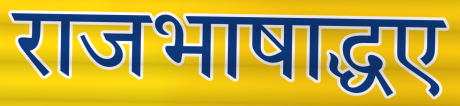
राजभाषाद्धए